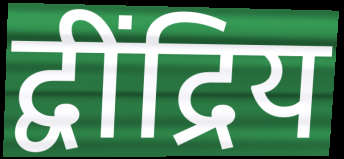
द्वींद्रिय